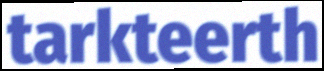
tarkteerth